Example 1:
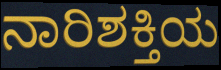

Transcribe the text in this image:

ನಾರಿಶಕ್ತಿಯ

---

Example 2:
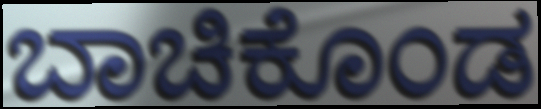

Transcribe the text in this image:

ಬಾಚಿಕೊಂಡ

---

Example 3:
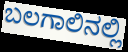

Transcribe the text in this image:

ಬಲಗಾಲಿನಲ್ಲಿ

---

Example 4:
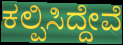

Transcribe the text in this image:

ಕಲ್ಪಿಸಿದ್ದೇವೆ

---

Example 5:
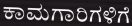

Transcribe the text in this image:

ಕಾಮಗಾರಿಗಳಿಗೆ